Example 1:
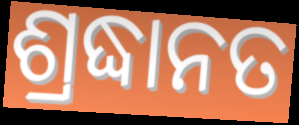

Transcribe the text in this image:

ଶ୍ରଦ୍ଧାନତ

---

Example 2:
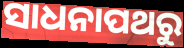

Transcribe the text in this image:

ସାଧନାପଥରୁ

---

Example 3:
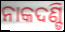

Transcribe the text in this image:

ନାକଦଣ୍ଡି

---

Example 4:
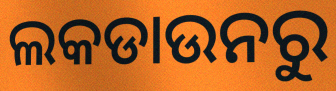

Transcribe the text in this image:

ଲକଡାଉନରୁ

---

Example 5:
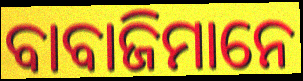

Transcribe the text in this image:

ବାବାଜିମାନେ